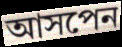
আসপেন